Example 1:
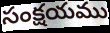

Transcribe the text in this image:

సంక్షయము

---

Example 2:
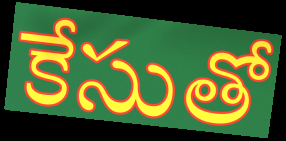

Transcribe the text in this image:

కేసుతో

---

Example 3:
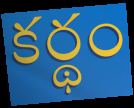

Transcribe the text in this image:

కర్థం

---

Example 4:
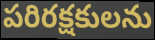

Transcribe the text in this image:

పరిరక్షకులను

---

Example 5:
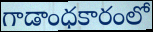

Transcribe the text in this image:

గాడాంధకారంలో